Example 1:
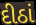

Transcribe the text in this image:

દીઠાં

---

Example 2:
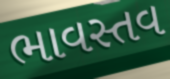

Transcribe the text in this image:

ભાવસ્તવ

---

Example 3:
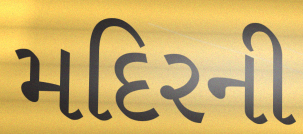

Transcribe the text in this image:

મદિરની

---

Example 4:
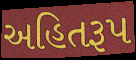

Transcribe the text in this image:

અહિતરૂપ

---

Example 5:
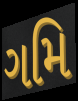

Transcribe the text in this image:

ગમિ